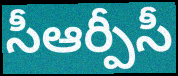
సీఆర్పీసీ